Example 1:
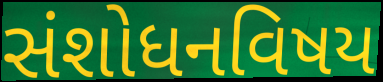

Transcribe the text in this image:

સંશોધનવિષય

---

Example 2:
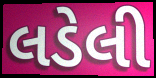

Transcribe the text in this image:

લડેલી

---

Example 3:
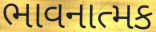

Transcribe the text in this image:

ભાવનાત્મક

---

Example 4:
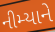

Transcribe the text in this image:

નીમ્યાને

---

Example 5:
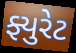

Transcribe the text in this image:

ફ્યુરેટ